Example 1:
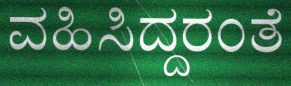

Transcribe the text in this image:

ವಹಿಸಿದ್ದರಂತೆ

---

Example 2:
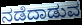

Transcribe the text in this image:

ನಡೆದಾಡುವ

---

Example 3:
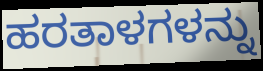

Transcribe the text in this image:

ಹರತಾಳಗಳನ್ನು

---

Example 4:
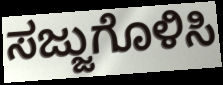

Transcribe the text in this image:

ಸಜ್ಜುಗೊಳಿಸಿ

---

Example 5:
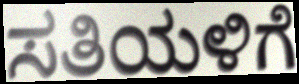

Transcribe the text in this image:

ಸತಿಯಳಿಗೆ